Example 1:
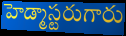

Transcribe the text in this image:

హెడ్మాస్టరుగారు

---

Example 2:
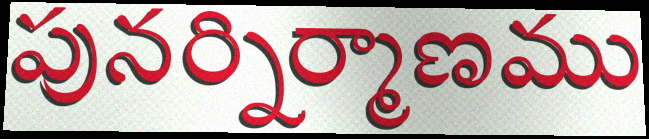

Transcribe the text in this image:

పునర్నిర్మాణము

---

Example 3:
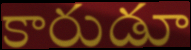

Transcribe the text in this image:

కారుడూ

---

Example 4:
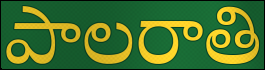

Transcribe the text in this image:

పాలరాతి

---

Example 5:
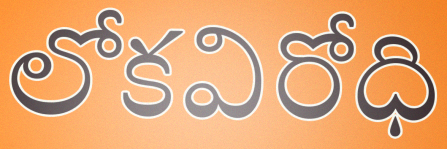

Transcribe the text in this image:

లోకవిరోధి